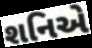
શનિએ